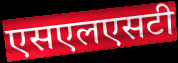
एसएलएसटी